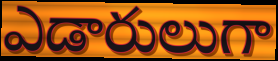
ఎడారులుగా